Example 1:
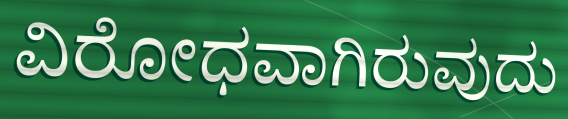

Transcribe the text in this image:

ವಿರೋಧವಾಗಿರುವುದು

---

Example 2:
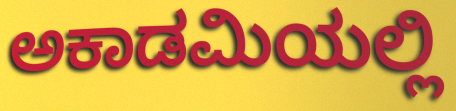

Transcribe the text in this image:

ಅಕಾಡಮಿಯಲ್ಲಿ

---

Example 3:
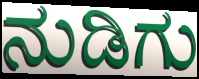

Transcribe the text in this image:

ನುಡಿಗು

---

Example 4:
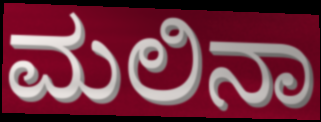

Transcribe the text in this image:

ಮಲಿನಾ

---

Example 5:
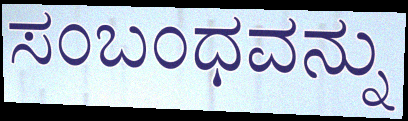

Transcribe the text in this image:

ಸಂಬಂಧವನ್ನು